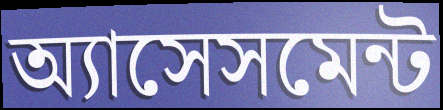
অ্যাসেসমেন্ট